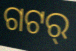
ଗଟର୍